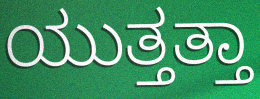
ಯುತ್ತತ್ತಾ